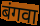
बंगवा